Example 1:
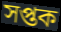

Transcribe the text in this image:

সপ্তক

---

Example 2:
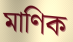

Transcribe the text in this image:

মাণিক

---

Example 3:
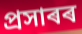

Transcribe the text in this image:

প্ৰসাৰৰ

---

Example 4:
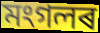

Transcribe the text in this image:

মংগলৰ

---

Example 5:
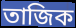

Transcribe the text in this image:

তাজিক